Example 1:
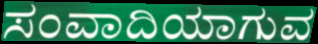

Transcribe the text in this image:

ಸಂವಾದಿಯಾಗುವ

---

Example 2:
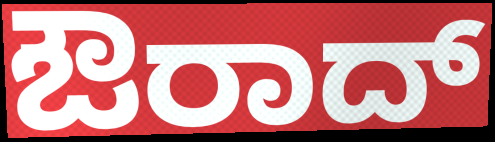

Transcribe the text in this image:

ಔರಾದ್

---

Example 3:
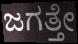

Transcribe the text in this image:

ಜಗತ್ತೇ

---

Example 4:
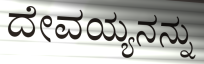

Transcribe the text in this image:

ದೇವಯ್ಯನನ್ನು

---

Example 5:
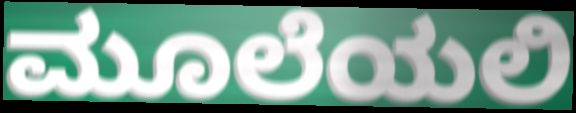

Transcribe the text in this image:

ಮೂಲೆಯಲಿ